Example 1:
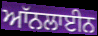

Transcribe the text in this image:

ਆੱਨਲਾਈਨ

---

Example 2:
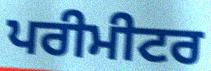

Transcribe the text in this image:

ਪਰੀਮੀਟਰ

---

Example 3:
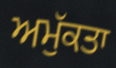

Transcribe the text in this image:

ਅਮੁੱਕਤਾ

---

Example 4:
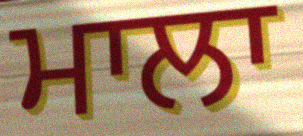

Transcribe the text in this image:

ਮਾਲਾ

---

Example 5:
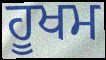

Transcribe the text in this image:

ਹੂਖਮ